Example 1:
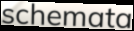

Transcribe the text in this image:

schemata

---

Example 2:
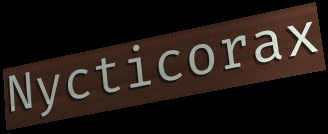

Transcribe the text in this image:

Nycticorax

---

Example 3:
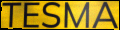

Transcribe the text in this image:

TESMA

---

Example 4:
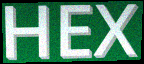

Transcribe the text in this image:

HEX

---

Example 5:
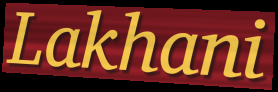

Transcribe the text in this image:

Lakhani